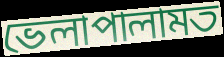
ভেলাপালামত